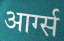
आर्ग्स